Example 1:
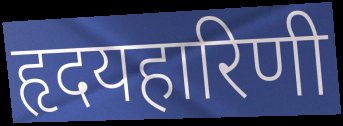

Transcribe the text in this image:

हृदयहारिणी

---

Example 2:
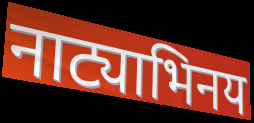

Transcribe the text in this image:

नाट्याभिनय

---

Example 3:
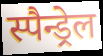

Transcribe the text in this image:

स्पैन्ड्रेल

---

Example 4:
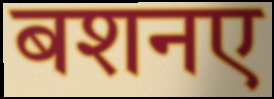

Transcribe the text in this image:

बशनए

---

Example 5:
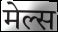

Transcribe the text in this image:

मेल्स